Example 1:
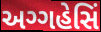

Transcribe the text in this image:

અગ્ગહેસિં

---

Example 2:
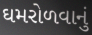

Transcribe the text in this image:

ઘમરોળવાનું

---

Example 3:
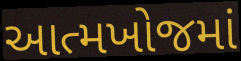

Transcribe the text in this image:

આત્મખોજમાં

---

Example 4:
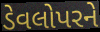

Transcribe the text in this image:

ડેવલોપરને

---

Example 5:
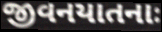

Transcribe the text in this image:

જીવનયાતનાઃ